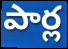
పార్ల